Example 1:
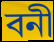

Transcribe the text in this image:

বনী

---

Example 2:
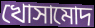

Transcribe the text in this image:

খোসামোদ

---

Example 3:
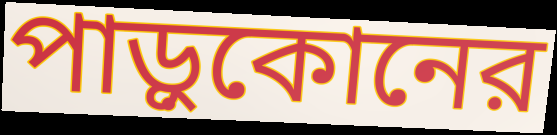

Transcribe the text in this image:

পাড়ুকোনের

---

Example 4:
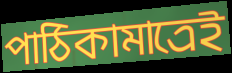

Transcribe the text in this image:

পাঠিকামাত্রেই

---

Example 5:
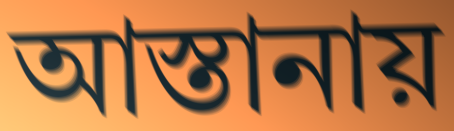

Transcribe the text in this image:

আস্তানায়